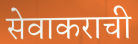
सेवाकराची